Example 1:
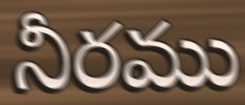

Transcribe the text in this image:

నీరము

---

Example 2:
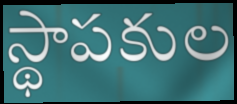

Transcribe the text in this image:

స్థాపకుల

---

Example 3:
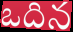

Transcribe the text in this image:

ఒదిన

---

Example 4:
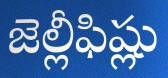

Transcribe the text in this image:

జెల్లీఫిష్లు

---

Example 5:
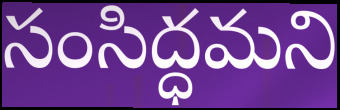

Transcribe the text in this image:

సంసిద్ధమని